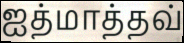
ஐத்மாத்தவ்